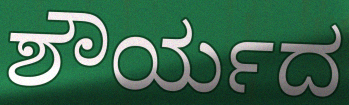
ಶೌರ್ಯದ